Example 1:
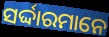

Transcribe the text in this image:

ସର୍ଦ୍ଦାରମାନେ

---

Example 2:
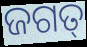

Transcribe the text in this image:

ଜଗତ୍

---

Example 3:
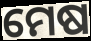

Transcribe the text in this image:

ମେଷ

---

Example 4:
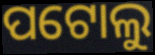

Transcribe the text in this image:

ପଟୋଲୁ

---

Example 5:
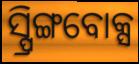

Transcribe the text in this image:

ସ୍ପ୍ରିଙ୍ଗବୋକ୍ସ